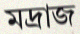
মদ্রাজ